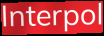
Interpol